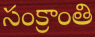
సంక్రాంతి